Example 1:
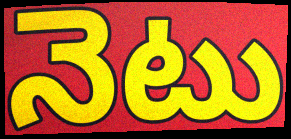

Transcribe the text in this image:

నెటు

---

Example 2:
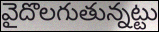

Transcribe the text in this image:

వైదొలగుతున్నట్టు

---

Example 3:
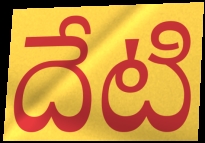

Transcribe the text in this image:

దేటి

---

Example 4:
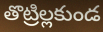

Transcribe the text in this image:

తొట్రిల్లకుండ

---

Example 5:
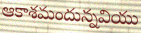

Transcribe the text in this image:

ఆకాశమందున్నవియు